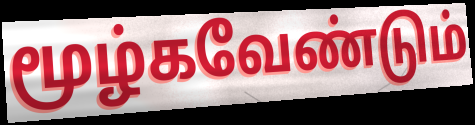
மூழ்கவேண்டும்